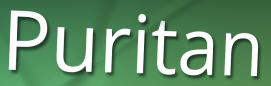
Puritan